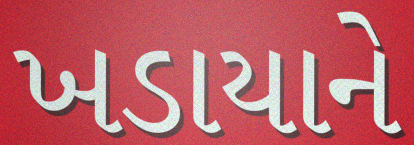
ખડાયાને